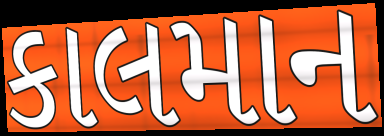
કાલમાન